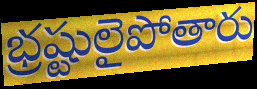
భ్రష్టులైపోతారు